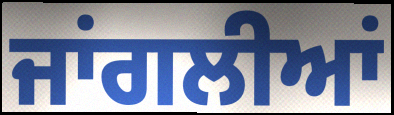
ਜਾਂਗਲੀਆਂ